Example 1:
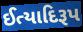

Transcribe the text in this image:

ઈત્યાદિરૂપ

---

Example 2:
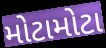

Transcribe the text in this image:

મોટામોટા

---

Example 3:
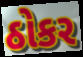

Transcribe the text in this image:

ઠોકર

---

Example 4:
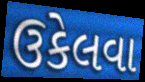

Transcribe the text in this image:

ઉકેલવા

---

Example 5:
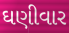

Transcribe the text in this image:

ઘણીવાર